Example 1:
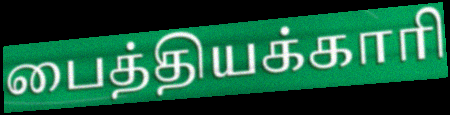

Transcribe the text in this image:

பைத்தியக்காரி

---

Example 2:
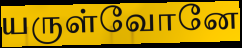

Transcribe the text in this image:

யருள்வோனே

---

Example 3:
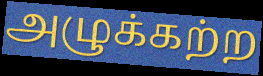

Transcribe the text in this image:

அழுக்கற்ற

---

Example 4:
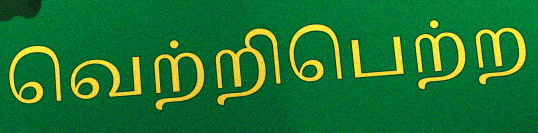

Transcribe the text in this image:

வெற்றிபெற்ற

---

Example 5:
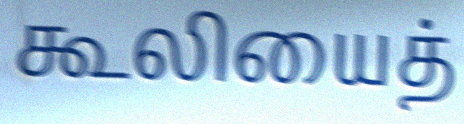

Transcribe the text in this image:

கூலியைத்